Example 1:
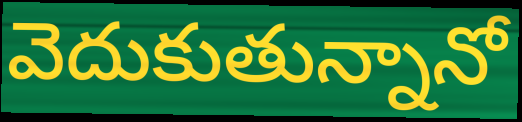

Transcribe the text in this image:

వెదుకుతున్నానో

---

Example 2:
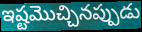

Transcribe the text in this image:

ఇష్టమొచ్చినప్పుడు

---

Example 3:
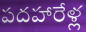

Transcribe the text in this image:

పదహారేళ్ల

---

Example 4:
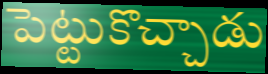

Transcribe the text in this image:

పెట్టుకొచ్చాడు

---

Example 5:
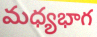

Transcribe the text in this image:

మధ్యభాగ